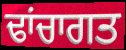
ਢਾਂਚਾਗਤ